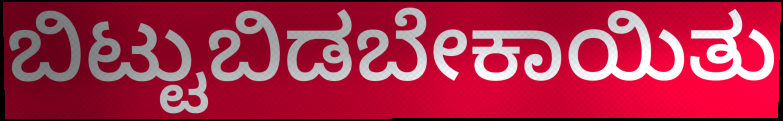
ಬಿಟ್ಟುಬಿಡಬೇಕಾಯಿತು